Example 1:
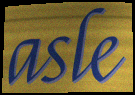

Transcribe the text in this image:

asle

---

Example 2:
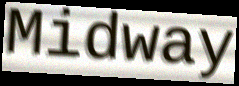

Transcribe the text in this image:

Midway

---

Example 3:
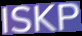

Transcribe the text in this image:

ISKP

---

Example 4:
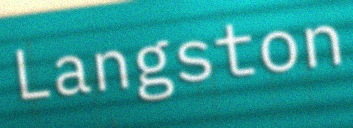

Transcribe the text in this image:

Langston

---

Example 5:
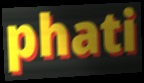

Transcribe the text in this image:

phati